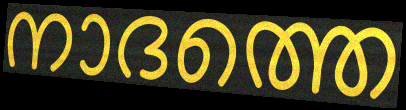
നാദത്തെ